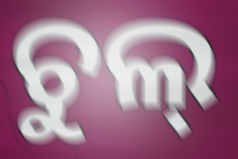
ଚୁଲ୍